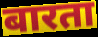
बारता